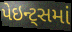
પેઇન્ટ્સમાં